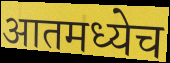
आतमध्येच